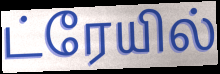
ட்ரேயில்